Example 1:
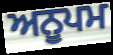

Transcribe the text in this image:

ਅਨੂਪਮ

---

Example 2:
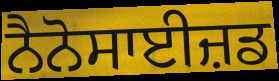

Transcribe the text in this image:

ਨੈਨੋਸਾਈਜ਼ਡ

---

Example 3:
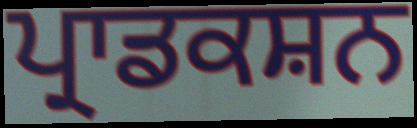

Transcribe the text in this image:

ਪ੍ਰਾਡਕਸ਼ਨ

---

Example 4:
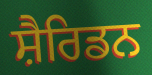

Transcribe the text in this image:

ਸ਼ੈਰਿਡਨ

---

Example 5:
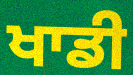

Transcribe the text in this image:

ਖਾਡੀ